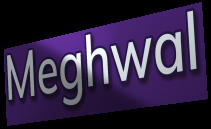
Meghwal